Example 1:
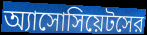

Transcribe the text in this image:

অ্যাসোসিয়েটসের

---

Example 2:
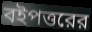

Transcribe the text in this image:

বইপত্তরের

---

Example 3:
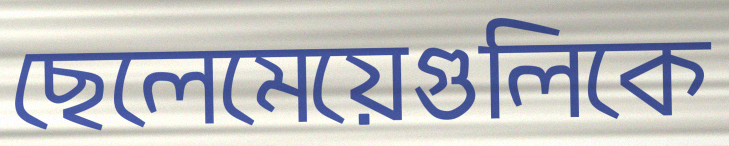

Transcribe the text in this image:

ছেলেমেয়েগুলিকে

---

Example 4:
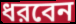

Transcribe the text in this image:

ধরবেন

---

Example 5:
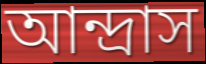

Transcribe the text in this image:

আন্দ্রাস